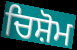
ਚਿਸ਼ੋਮ